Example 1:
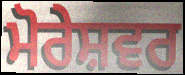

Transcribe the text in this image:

ਮੋਰੇਸ਼ਵਰ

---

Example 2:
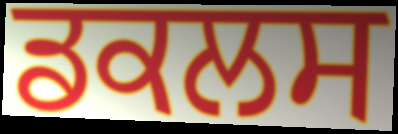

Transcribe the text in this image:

ਡਕਲਸ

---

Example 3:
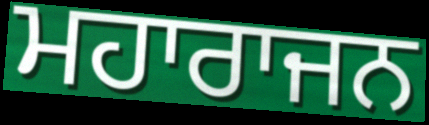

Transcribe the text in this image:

ਮਹਾਰਾਜਨ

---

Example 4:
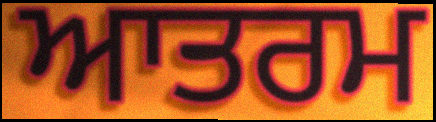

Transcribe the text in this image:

ਆਤਰਮ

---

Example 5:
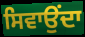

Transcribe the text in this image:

ਸਿਵਾਉਂਦਾ